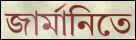
জার্মানিতে